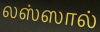
லஸ்ஸால்